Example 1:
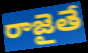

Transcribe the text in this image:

రాజైతే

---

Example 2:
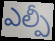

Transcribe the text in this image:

ఎల్పీ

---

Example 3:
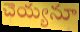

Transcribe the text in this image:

చెయ్యనూ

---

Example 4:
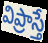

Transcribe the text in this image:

విప్రాస్తే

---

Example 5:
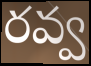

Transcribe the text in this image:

రవ్వ